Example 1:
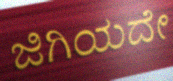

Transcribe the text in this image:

ಜಿಗಿಯದೇ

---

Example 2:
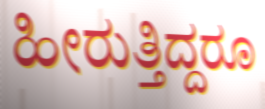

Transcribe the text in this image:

ಹೀರುತ್ತಿದ್ದರೂ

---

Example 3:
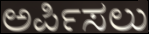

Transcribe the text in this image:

ಅರ್ಪಿಸಲು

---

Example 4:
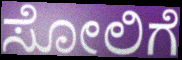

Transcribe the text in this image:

ಸೋಲಿಗೆ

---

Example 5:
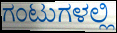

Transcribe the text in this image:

ಗಂಟುಗಳಲ್ಲಿ